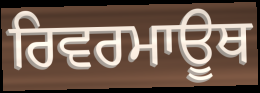
ਰਿਵਰਮਾਊਥ